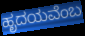
ಹೃದಯವೆಂಬ